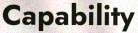
Capability